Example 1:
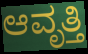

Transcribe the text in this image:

ಆವೃತ್ತಿ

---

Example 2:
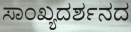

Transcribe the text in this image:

ಸಾಂಖ್ಯದರ್ಶನದ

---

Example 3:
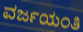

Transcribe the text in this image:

ವರ್ಜಯಂತಿ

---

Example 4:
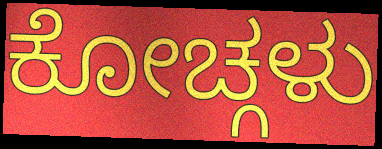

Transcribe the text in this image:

ಕೋಚ್ಗಳು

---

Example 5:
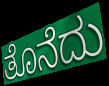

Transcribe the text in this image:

ತೊನೆದು